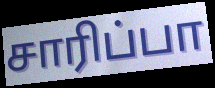
சாரிப்பா